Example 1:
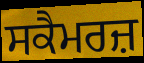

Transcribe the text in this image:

ਸਕੈਮਰਜ਼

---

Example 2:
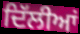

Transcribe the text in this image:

ਦਿੱਲੀਆਂ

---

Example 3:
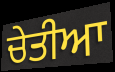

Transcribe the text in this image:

ਚੇਤੀਆ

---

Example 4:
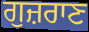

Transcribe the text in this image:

ਗੁਜ਼ਰਾਣ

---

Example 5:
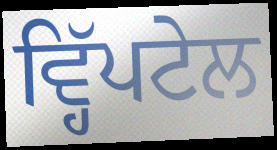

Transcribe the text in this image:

ਵ੍ਹਿੱਪਟੇਲ